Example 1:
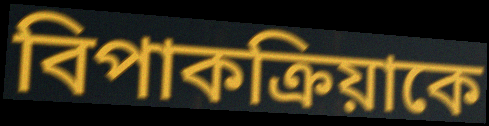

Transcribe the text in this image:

বিপাকক্রিয়াকে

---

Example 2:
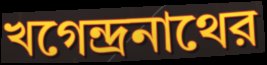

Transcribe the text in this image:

খগেন্দ্রনাথের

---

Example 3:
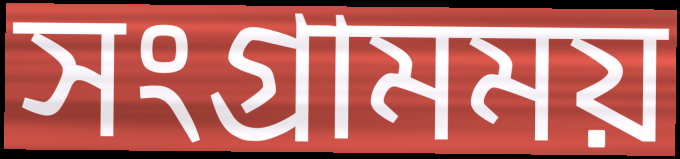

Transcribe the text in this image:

সংগ্রামময়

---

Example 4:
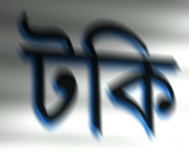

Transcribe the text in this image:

টকি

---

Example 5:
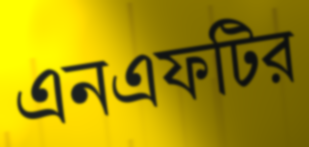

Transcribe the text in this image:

এনএফটির